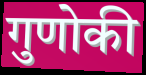
गुणोकी